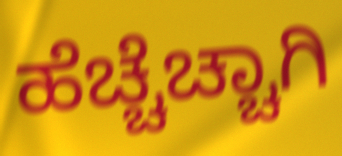
ಹೆಚ್ಚೆಚ್ಚಾಗಿ